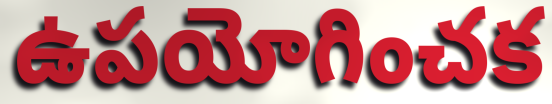
ఉపయోగించక